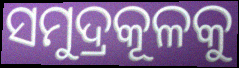
ସମୁଦ୍ରକୂଳକୁ